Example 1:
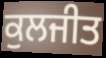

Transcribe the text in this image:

ਕੁਲਜੀਤ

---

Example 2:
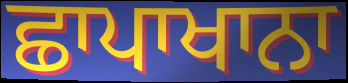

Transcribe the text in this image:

ਛਾਪਾਖਾਨਾ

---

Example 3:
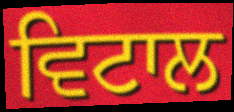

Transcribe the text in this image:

ਵਿਟਾਲ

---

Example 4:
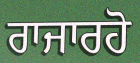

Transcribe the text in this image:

ਰਾਜਾਰਹੋ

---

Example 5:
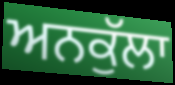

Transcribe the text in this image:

ਅਨਕੁੱਲਾ